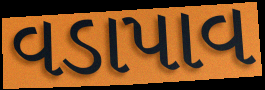
વડાપાવ